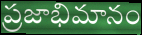
ప్రజాభిమానం